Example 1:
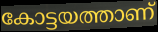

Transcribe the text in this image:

കോട്ടയത്താണ്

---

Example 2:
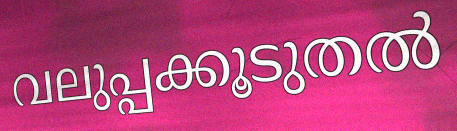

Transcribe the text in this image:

വലുപ്പക്കൂടുതൽ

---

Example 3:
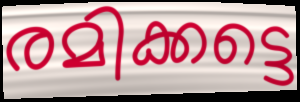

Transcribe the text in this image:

രമിക്കട്ടെ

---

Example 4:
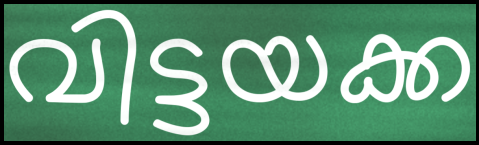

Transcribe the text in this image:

വിട്ടയക്ക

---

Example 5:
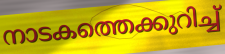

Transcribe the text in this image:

നാടകത്തെക്കുറിച്ച്